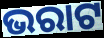
ଭରାଟ